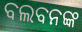
ବଲବନଙ୍କ